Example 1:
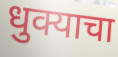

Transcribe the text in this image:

धुक्याचा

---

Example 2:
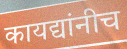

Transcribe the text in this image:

कायद्यांनीच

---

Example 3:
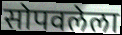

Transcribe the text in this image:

सोपवलेला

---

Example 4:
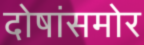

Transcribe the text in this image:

दोषांसमोर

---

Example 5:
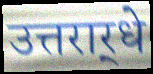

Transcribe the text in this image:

उत्तरार्धे